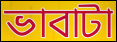
ভাবাটা